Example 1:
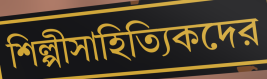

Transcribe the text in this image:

শিল্পীসাহিত্যিকদের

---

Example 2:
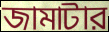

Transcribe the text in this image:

জামাটার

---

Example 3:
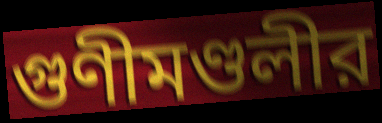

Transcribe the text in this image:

গুণীমণ্ডলীর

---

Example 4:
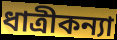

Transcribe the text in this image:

ধাত্রীকন্যা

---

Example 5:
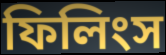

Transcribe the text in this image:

ফিলিংস